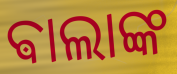
ଵାଲାଙ୍କ